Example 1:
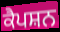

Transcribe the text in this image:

ਕੈਪਸ਼ਨ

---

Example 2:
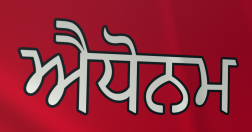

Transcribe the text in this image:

ਐਧੋਨਮ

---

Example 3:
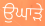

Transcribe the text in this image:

ਉਘਾੜੇ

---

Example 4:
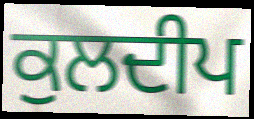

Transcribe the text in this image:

ਕੁਲਦੀਪ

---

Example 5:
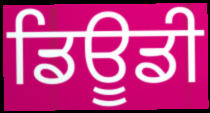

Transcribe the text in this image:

ਡਿਊਡੀ